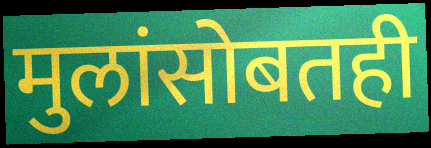
मुलांसोबतही